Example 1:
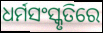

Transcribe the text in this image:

ଧର୍ମସଂସ୍କୃତିରେ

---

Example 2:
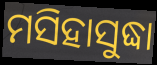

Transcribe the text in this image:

ମସିହାସୁଦ୍ଧା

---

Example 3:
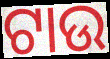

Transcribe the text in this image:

ଟାଉ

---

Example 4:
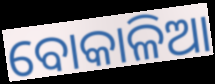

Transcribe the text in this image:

ବୋକାଳିଆ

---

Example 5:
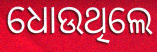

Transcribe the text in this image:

ଧୋଉଥିଲେ